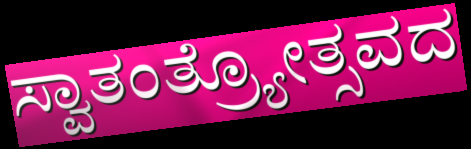
ಸ್ವಾತಂತ್ರ್ಯೋತ್ಸವದ